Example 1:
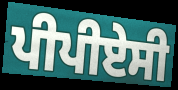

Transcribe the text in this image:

ਪੀਪੀਏਸੀ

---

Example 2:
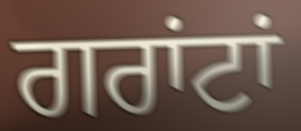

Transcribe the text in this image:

ਗਰਾਂਟਾਂ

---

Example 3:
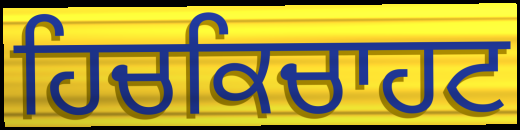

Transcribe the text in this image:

ਹਿਚਕਿਚਾਹਟ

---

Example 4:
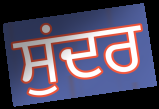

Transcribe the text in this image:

ਸੁਂਦਰ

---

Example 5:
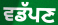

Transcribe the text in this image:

ਵਡੱਪਣ